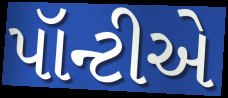
પૉન્ટીએ